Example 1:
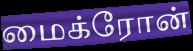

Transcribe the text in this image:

மைக்ரோன்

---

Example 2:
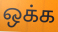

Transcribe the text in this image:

ஒக்க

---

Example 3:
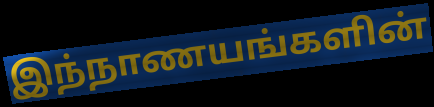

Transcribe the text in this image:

இந்நாணயங்களின்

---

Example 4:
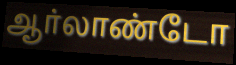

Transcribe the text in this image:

ஆர்லாண்டோ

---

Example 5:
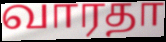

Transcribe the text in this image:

வாரதா